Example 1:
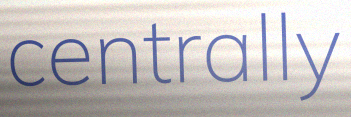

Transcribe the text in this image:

centrally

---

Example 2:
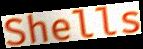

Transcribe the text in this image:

Shells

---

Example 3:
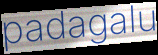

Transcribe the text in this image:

padagalu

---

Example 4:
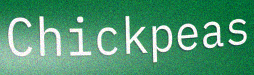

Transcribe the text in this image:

Chickpeas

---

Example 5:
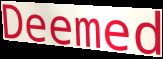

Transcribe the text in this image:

Deemed